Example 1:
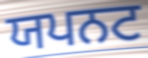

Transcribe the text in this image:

ਯਪਨਟ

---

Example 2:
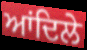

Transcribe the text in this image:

ਆਂਦਿਲੇ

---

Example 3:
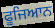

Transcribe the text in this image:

ਫੂਜਿਆਨ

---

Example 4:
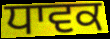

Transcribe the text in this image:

ਧਾਵਕ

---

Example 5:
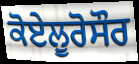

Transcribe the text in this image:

ਕੋਏਲੂਰੋਸੌਰ